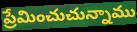
ప్రేమించుచున్నాము